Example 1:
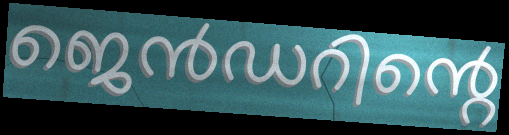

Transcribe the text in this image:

ജെൻഡറിന്റെ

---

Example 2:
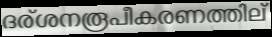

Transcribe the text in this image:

ദര്ശനരൂപീകരണത്തില്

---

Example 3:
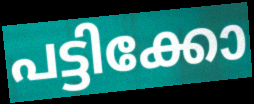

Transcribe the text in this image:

പട്ടിക്കോ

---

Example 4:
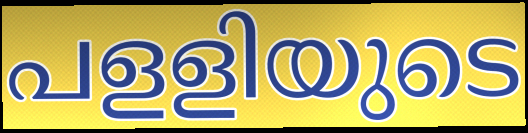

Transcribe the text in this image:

പളളിയുടെ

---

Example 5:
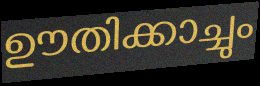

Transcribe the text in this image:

ഊതിക്കാച്ചും